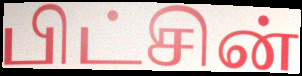
பிட்சின்